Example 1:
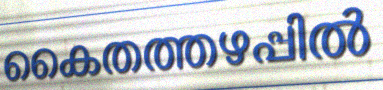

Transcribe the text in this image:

കൈതത്തഴപ്പിൽ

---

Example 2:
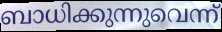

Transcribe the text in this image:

ബാധിക്കുന്നുവെന്ന്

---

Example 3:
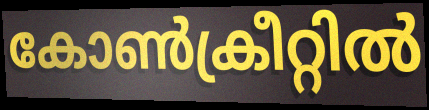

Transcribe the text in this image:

കോൺക്രീറ്റിൽ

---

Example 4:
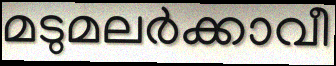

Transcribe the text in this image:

മടുമലർക്കാവീ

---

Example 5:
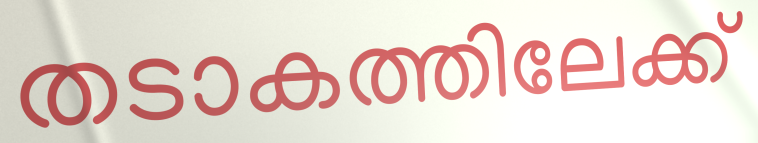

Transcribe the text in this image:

തടാകത്തിലേക്ക്